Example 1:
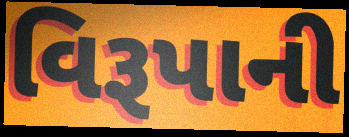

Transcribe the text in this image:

વિરૂપાની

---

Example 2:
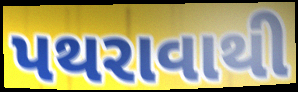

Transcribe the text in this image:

પથરાવાથી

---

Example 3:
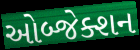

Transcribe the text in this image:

ઓબ્જેક્શન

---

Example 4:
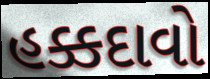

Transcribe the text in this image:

હક્કદાવો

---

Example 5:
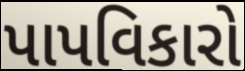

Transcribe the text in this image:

પાપવિકારો